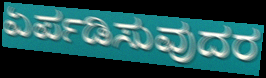
ಏರ್ಪಡಿಸುವುದರ